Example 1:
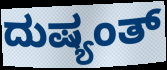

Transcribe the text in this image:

ದುಷ್ಯಂತ್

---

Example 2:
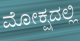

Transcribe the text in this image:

ಮೋಕ್ಷದಲ್ಲಿ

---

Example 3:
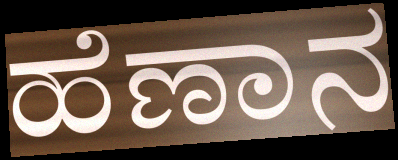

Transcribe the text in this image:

ಹೆಣಾನ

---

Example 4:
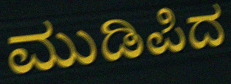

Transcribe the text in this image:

ಮುಡಿಪಿದ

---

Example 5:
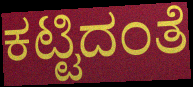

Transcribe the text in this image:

ಕಟ್ಟಿದಂತೆ